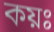
কয়ঃ